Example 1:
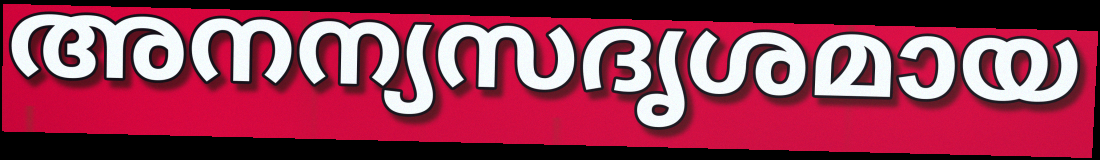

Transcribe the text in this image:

അനന്യസദൃശമായ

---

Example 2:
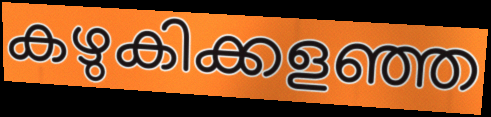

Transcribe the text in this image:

കഴുകിക്കളഞ്ഞ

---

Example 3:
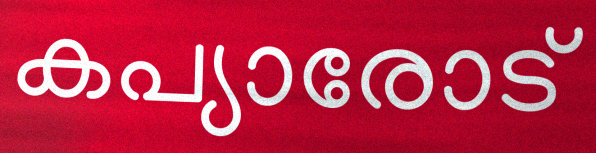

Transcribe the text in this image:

കപ്യാരോട്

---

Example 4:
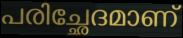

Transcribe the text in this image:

പരിച്ഛേദമാണ്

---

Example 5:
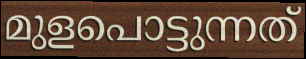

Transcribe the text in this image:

മുളപൊട്ടുന്നത്